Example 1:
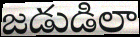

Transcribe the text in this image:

జడుడిలా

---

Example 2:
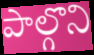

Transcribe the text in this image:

పాల్గొని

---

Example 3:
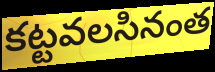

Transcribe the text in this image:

కట్టవలసినంత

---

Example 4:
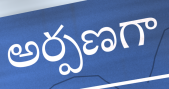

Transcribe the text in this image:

అర్పణగా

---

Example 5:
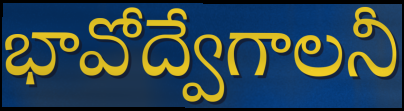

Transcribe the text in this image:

భావోద్వేగాలనీ